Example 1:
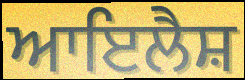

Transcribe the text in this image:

ਆਇਲੈਸ਼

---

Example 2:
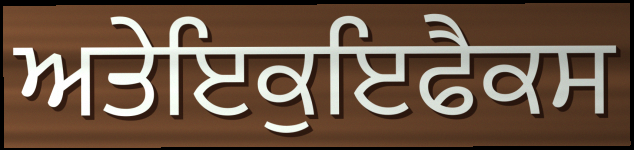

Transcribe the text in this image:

ਅਤੇਇਕੁਇਫੈਕਸ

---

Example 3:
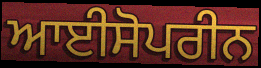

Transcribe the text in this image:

ਆਈਸੋਪਰੀਨ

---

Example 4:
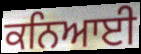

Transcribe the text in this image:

ਕਨਿਆਈ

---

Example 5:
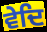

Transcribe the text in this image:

ਵੇਦਿ